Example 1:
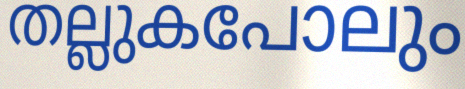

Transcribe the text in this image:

തല്ലുകപോലും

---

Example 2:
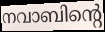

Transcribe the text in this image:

നവാബിന്റെ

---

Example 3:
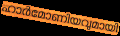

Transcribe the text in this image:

ഹാർമോണിയവുമായി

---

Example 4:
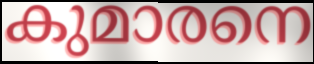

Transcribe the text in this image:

കുമാരനെ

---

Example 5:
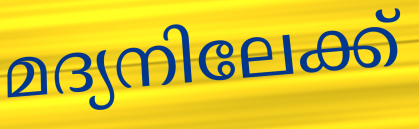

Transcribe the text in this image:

മദ്യനിലേക്ക്